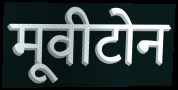
मूवीटोन